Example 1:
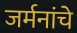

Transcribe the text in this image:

जर्मनांचे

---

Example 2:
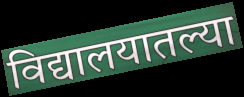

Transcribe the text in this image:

विद्यालयातल्या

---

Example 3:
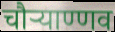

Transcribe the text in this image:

चौऱ्याण्णव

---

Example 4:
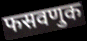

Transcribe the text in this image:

फसवणुक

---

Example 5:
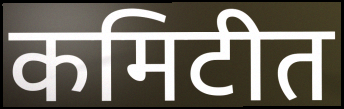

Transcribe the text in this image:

कमिटीत